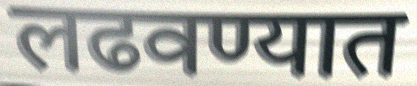
लढवण्यात